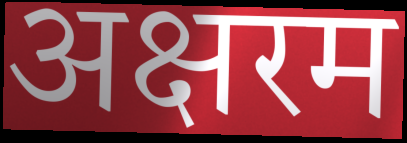
अक्षरम